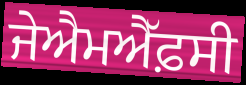
ਜੇਐਮਐੱਫ਼ਸੀ